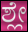
ಶ್ಲೇ